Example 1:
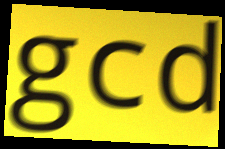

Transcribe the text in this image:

gcd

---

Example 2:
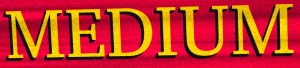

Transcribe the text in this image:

MEDIUM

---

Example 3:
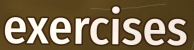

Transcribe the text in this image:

exercises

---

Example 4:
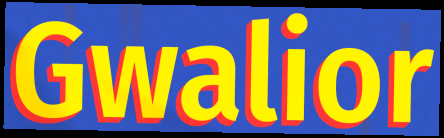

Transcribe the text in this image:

Gwalior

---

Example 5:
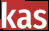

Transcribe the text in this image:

kas